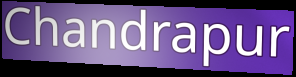
Chandrapur